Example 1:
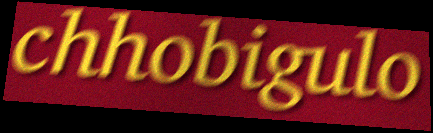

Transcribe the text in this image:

chhobigulo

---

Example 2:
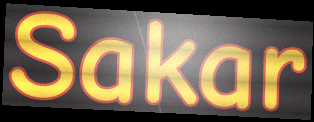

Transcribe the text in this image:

Sakar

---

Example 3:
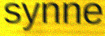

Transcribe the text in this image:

synne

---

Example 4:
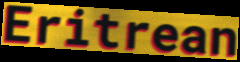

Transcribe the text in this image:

Eritrean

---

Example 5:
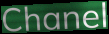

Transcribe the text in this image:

Chanel